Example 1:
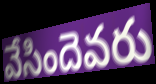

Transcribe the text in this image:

వేసిందెవరు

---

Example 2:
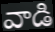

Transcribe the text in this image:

వాడి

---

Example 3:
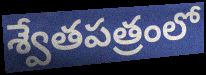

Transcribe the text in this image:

శ్వేతపత్రంలో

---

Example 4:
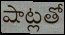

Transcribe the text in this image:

షాట్లతో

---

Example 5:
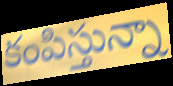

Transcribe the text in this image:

కంపిస్తున్నా